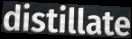
distillate